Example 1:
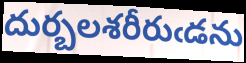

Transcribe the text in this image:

దుర్బలశరీరుఁడను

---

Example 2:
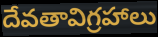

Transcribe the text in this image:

దేవతావిగ్రహాలు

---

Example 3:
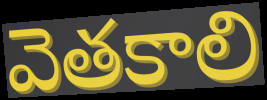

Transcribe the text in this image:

వెతకాలి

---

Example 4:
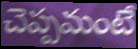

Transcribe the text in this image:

చెప్పమంటే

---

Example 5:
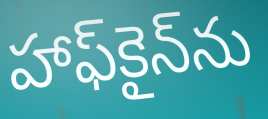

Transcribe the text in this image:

హాఫ్‌కైన్‌ను